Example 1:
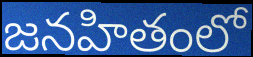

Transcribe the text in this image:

జనహితంలో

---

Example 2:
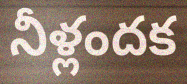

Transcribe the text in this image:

నీళ్లందక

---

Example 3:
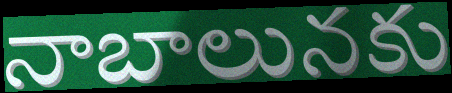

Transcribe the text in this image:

నాబాలునకు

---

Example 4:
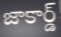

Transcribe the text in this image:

జాకార్డ్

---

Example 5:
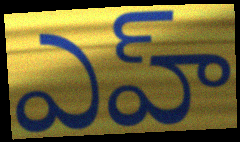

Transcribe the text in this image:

ఎహ్